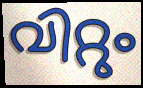
വിറ്റും